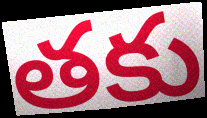
తకు